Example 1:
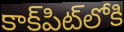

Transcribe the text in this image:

కాక్‌పిట్‌లోకి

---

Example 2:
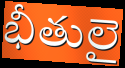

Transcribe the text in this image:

భీతులై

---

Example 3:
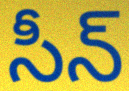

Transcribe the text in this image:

సీన్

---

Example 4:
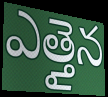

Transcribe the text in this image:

ఎత్తైన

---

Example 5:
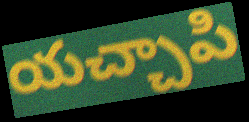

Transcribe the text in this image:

యచ్చాపి